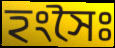
হংসৈঃ